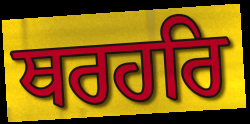
ਥਰਹਰਿ